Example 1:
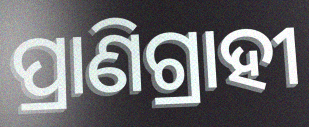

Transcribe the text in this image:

ପ୍ରାଣିଗ୍ରାହୀ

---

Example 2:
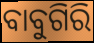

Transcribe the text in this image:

ବାବୁଗିରି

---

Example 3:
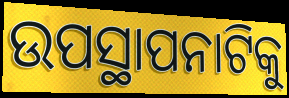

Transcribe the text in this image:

ଉପସ୍ଥାପନାଟିକୁ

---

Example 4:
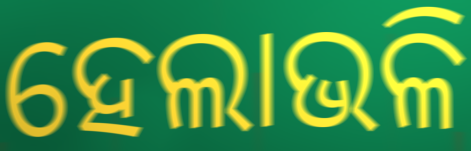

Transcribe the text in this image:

ହେଲାଭଳି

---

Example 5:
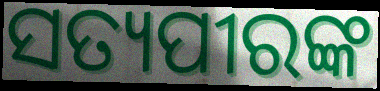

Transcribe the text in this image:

ସତ୍ୟପୀରଙ୍କ